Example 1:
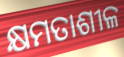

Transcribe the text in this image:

କ୍ଷମତାଶୀଳ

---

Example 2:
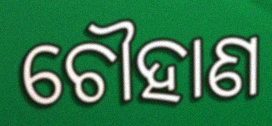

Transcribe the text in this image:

ଚୌହାଣ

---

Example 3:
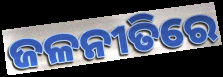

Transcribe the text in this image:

ଜଳନୀତିରେ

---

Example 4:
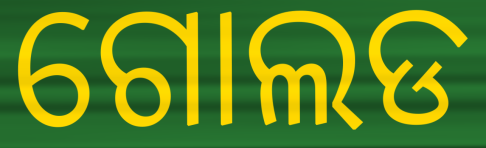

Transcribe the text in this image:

ଗୋଲଡ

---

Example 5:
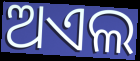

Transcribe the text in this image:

ଅଏଲ